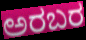
ಅರಬರ